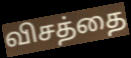
விசத்தை